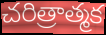
చరిత్రాత్మక